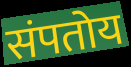
संपतोय